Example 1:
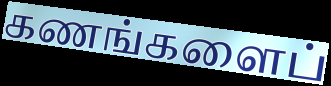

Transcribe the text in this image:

கணங்களைப்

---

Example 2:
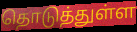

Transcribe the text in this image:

தொடுத்துள்ள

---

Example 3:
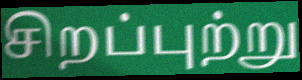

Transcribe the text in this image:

சிறப்புற்று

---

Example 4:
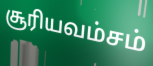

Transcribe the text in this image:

சூரியவம்சம்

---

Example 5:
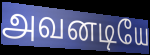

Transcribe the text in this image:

அவனடியே